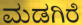
ಮಡಗಿರೆ